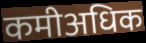
कमीअधिक